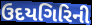
ઉદયગિરિની